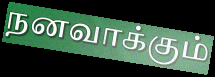
நனவாக்கும்